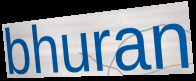
bhuran